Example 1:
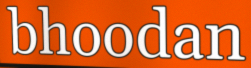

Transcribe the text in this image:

bhoodan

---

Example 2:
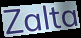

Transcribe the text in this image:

Zalta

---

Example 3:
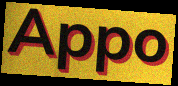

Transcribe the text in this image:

Appo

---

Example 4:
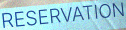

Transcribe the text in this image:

RESERVATION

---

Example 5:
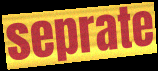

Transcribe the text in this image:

seprate